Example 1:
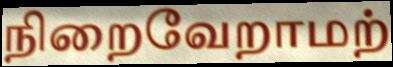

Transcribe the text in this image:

நிறைவேறாமற்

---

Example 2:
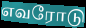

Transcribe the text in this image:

எவரோடு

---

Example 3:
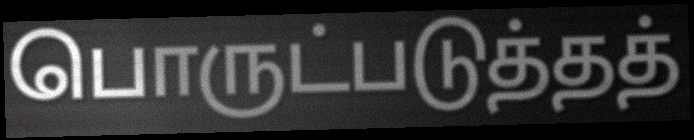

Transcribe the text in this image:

பொருட்படுத்தத்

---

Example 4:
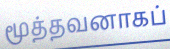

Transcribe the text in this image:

மூத்தவனாகப்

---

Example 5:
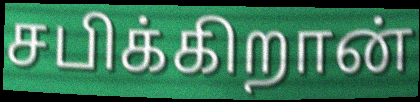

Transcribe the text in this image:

சபிக்கிறான்